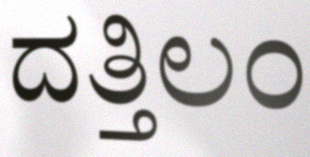
ದತ್ತಿಲಂ